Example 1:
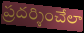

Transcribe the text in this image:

ప్రదర్శించేలా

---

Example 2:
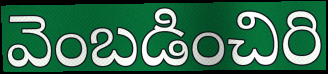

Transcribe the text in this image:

వెంబడించిరి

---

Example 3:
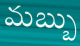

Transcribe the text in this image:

మబ్బు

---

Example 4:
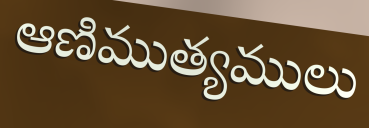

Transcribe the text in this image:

ఆణిముత్యములు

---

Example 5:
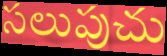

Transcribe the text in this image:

సలుపుచు